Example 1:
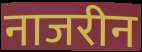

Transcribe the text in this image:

नाजरीन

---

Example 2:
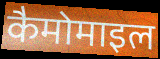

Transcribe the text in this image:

कैमोमाइल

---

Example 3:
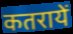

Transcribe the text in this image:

कतरायें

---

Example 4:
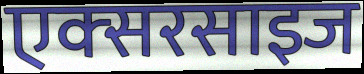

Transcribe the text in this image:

एक्‍सरसाइज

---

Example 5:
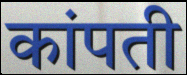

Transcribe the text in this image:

कांपती